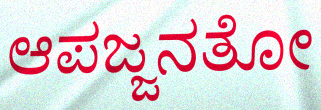
ಆಪಜ್ಜನತೋ